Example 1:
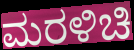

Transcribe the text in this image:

ಮರಳಿಚಿ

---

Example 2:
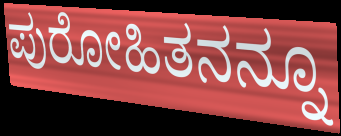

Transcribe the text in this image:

ಪುರೋಹಿತನನ್ನೂ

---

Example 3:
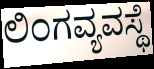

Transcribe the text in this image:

ಲಿಂಗವ್ಯವಸ್ಥೆ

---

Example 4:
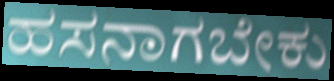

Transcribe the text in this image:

ಹಸನಾಗಬೇಕು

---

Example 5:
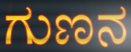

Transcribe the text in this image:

ಗುಣನ